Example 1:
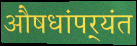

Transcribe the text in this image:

औषधांपर्यंत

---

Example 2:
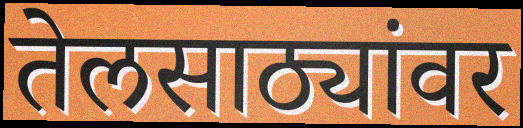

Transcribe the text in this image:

तेलसाठ्यांवर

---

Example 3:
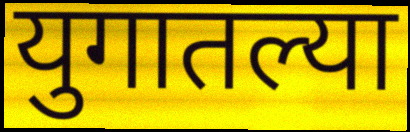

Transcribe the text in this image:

युगातल्या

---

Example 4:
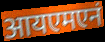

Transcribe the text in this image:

आयएमएनं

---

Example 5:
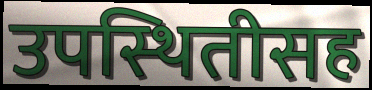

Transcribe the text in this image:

उपस्थितीसह